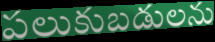
పలుకుబడులను